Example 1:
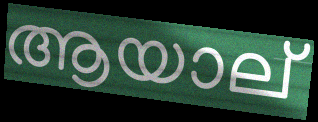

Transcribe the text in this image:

ആയാല്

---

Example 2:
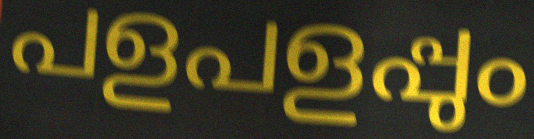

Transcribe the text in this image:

പളപളപ്പും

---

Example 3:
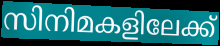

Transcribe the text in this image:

സിനിമകളിലേക്ക്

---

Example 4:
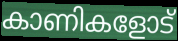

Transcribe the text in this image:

കാണികളോട്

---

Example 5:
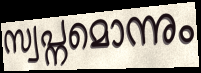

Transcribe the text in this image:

സ്വപ്നമൊന്നും